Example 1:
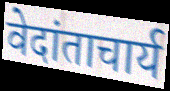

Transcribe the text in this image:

वेदांताचार्य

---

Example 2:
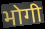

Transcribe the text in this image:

भोगी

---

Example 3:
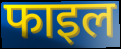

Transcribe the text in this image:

फाइल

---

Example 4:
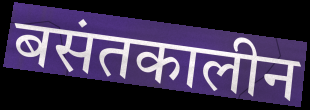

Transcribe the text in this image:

बसंतकालीन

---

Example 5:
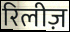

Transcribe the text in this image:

रिलीज़